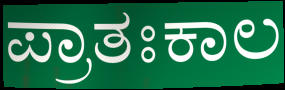
ಪ್ರಾತಃಕಾಲ